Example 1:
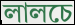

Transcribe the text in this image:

লালচে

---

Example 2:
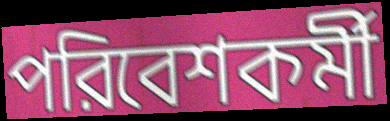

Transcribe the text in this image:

পরিবেশকর্মী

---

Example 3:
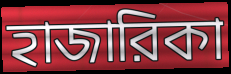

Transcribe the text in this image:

হাজারিকা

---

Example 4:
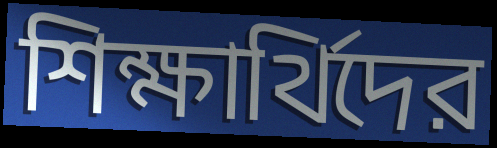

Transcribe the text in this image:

শিক্ষার্থিদের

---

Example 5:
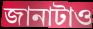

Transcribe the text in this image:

জানাটাও